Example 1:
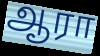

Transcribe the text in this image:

ஆரா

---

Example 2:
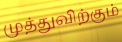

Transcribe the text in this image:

முத்துவிற்கும்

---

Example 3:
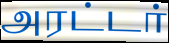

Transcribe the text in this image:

அரட்டர்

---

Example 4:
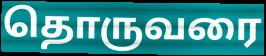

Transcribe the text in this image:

தொருவரை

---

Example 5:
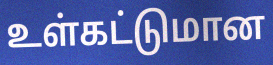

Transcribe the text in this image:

உள்கட்டுமான